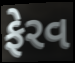
ફેરવ